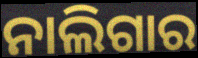
ନାଲିଗାର